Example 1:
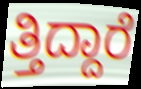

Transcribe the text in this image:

ತ್ತಿದ್ದಾರೆ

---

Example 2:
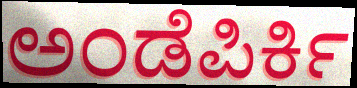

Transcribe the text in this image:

ಅಂಡೆಪಿರ್ಕಿ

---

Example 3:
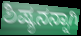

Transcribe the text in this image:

ಶಿಷ್ಯನನ್ನಾಗಿ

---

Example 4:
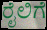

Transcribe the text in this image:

ರೈಲಿಗೆ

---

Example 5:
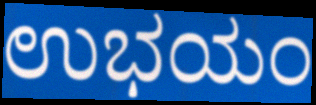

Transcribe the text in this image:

ಉಭಯಂ